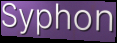
Syphon